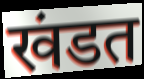
खंडत